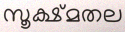
സൂക്ഷ്മതല